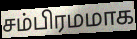
சம்பிரமமாக